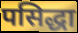
पसिद्धा